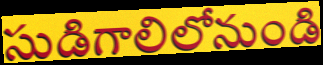
సుడిగాలిలోనుండి